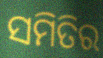
ସମିତିର